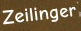
Zeilinger